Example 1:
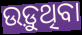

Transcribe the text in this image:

ଉଡ଼ୁଥିବା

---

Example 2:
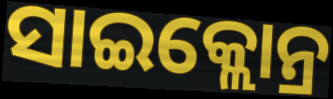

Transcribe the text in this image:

ସାଇକ୍ଲୋନ୍ର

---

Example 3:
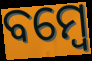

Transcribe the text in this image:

ବମ୍ୱେ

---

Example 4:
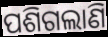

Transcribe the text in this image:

ପଶିଗଲାଣି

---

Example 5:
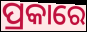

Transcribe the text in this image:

ପ୍ରକାରେ